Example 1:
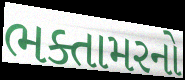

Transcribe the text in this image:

ભક્તામરનો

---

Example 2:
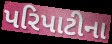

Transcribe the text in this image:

પરિપાટીના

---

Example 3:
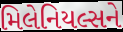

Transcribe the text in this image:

મિલેનિયલ્સને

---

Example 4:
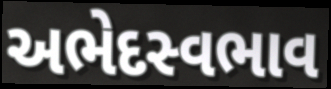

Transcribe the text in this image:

અભેદસ્વભાવ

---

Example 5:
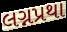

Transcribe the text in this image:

લગ્નપ્રથા